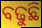
ବଢୁଛି